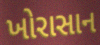
ખોરાસાન